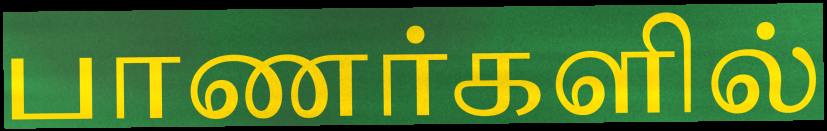
பாணர்களில்